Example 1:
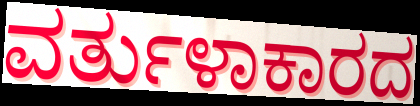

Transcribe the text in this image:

ವರ್ತುಳಾಕಾರದ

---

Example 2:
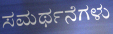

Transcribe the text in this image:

ಸಮರ್ಥನೆಗಳು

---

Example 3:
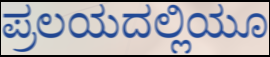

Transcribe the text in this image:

ಪ್ರಲಯದಲ್ಲಿಯೂ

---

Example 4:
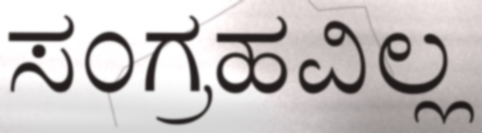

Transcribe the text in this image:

ಸಂಗ್ರಹವಿಲ್ಲ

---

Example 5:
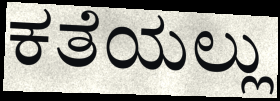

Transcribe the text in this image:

ಕತೆಯಲ್ಲು